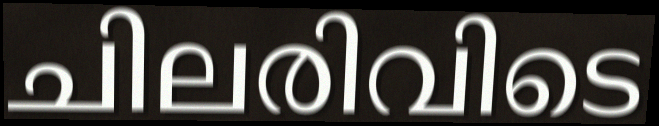
ചിലരിവിടെ